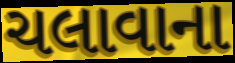
ચલાવાના